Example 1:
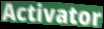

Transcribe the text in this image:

Activator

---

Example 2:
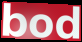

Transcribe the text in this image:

bod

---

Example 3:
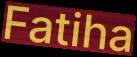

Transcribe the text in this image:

Fatiha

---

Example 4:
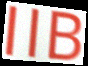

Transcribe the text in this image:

IIB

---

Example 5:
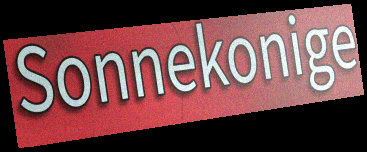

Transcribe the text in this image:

Sonnekonige